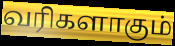
வரிகளாகும்